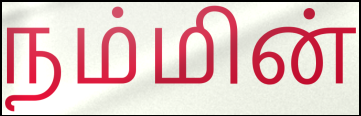
நம்மின்